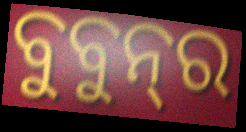
ବୁବୁନ୍‌ର